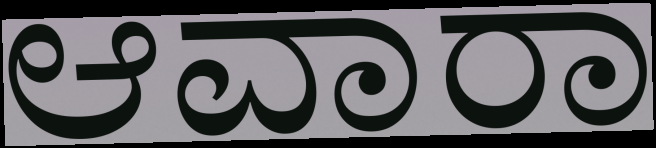
ಆವಾರಾ